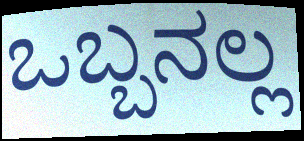
ಒಬ್ಬನಲ್ಲ